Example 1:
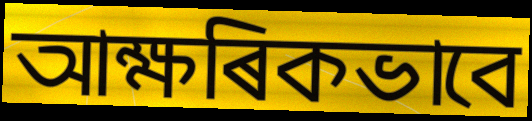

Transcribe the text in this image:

আক্ষৰিকভাবে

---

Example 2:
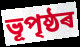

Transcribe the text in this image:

ভূপৃষ্ঠৰ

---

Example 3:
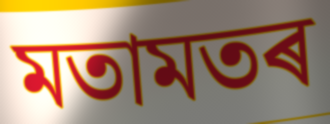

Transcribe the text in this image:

মতামতৰ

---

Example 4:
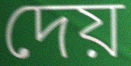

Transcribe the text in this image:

দেয়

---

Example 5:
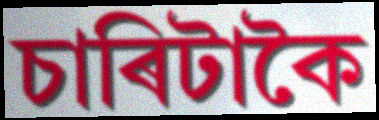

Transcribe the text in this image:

চাৰিটাকৈ